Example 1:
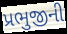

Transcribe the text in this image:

પ્રભુજીની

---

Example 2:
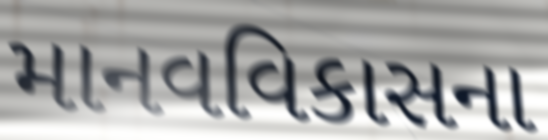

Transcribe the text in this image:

માનવવિકાસના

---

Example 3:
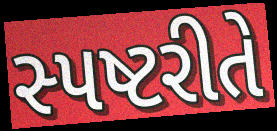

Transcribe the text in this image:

સ્પષ્ટરીતે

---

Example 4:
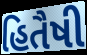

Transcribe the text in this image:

હિતૈષી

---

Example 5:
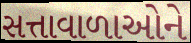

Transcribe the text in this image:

સત્તાવાળાઓને